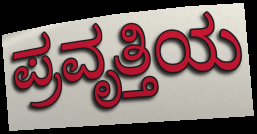
ಪ್ರವೃತ್ತಿಯ